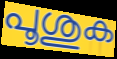
പൂശുക